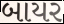
બાયર